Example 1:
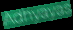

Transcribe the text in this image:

Adhyayas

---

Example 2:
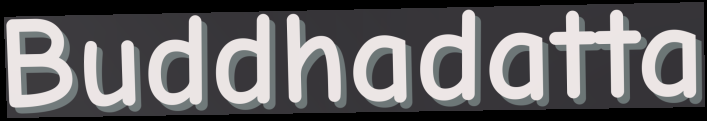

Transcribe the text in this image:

Buddhadatta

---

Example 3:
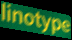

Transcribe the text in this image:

linotype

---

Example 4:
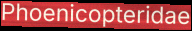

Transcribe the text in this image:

Phoenicopteridae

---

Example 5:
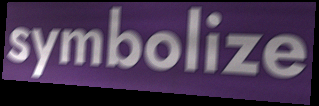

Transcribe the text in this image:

symbolize